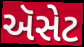
ઍસેટ